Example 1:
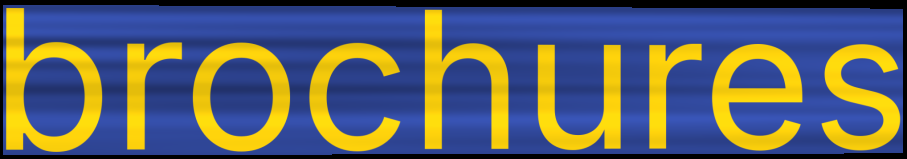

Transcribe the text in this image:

brochures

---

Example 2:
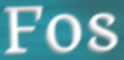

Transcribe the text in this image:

Fos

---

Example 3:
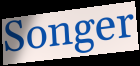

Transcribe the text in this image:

Songer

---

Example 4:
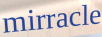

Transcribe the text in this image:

mirracle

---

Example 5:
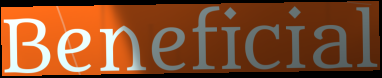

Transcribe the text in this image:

Beneficial